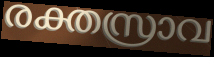
രക്തസ്രാവ